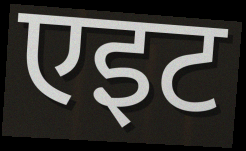
एइट